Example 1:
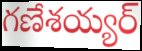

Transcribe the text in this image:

గణేశయ్యర్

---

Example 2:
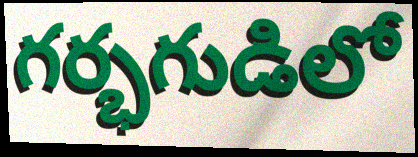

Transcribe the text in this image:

గర్భగుడిలో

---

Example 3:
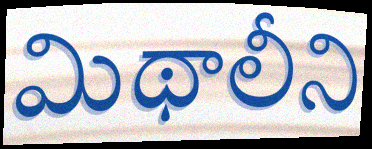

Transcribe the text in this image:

మిథాలీని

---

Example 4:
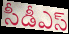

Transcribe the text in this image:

సీడీఎస్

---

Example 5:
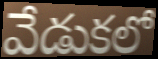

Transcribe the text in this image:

వేడుకలో